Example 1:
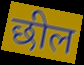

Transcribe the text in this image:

छील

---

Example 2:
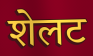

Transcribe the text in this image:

शेलट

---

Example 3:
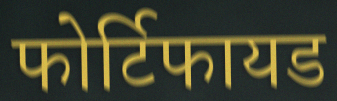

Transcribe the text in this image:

फोर्टिफायड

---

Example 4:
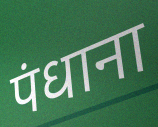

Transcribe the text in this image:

पंधाना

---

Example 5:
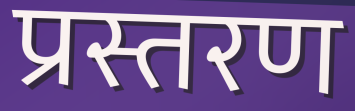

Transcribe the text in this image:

प्रस्तरण